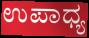
ಉಪಾಧ್ಯ